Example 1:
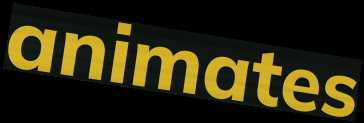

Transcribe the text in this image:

animates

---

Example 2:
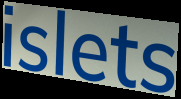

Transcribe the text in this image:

islets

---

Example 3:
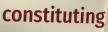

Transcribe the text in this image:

constituting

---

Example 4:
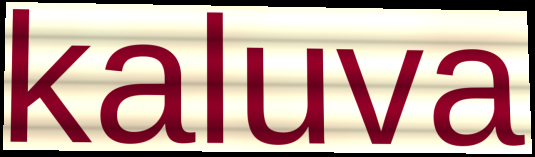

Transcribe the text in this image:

kaluva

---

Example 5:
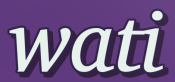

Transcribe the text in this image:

wati